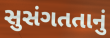
સુસંગતતાનું